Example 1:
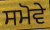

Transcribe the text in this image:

ਸਮੋਵੇ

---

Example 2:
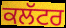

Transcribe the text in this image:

ਕਲੱਟਰ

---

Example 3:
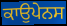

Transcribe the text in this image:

ਕਾਉਪੇਨਸ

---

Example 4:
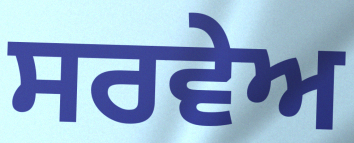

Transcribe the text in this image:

ਸਰਵੇਅ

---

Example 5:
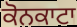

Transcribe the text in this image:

ਕੋਨਕਾਟਾ